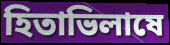
হিতাভিলাষে